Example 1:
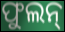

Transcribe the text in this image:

ଫୁଲନ୍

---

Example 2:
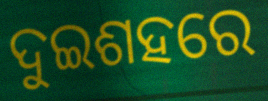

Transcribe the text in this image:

ଦୁଇଶହରେ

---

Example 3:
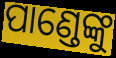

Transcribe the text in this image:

ପାଣ୍ଡେଙ୍କୁ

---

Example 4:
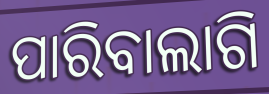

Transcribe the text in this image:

ପାରିବାଲାଗି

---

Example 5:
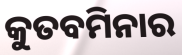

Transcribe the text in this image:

କୁତବମିନାର